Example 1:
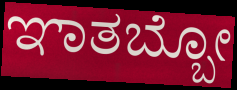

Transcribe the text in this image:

ಞಾತಬ್ಬೋ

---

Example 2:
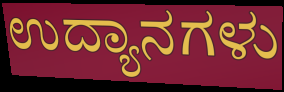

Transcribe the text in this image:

ಉದ್ಯಾನಗಳು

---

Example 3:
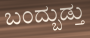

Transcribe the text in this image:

ಬಂದ್ಬುಡ್ತು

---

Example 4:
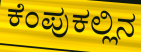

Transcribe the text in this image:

ಕೆಂಪುಕಲ್ಲಿನ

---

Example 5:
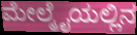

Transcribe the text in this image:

ಮೇಲ್ಮೈಯಲ್ಲಿನ